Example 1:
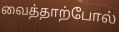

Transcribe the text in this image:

வைத்தாற்போல்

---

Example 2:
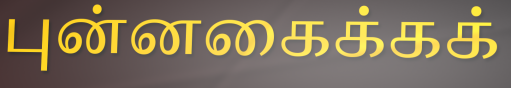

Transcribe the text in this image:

புன்னகைக்கக்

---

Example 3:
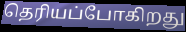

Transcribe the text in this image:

தெரியப்போகிறது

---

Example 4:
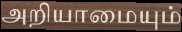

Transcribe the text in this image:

அறியாமையும்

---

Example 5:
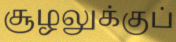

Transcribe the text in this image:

சூழலுக்குப்